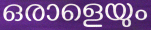
ഒരാളെയും